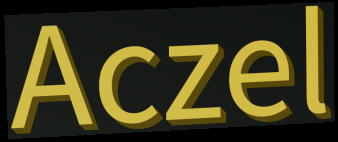
Aczel